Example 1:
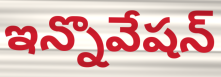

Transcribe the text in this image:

ఇన్నొవేషన్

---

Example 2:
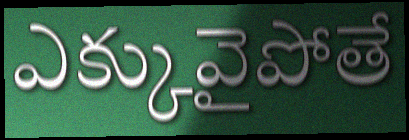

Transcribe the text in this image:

ఎక్కువైపోతే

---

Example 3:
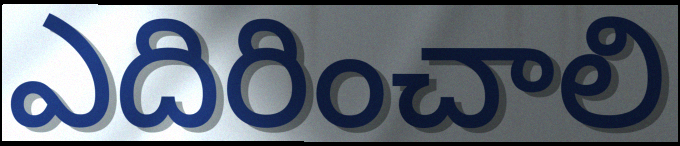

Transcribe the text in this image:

ఎదిరించాలి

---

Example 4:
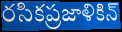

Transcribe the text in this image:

రసికప్రజాళికిన్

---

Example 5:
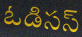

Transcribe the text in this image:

ఓడిసస్